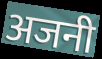
अजनी